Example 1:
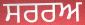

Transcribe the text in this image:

ਸਰਰਅ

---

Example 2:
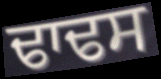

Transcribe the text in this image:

ਢਾਢਸ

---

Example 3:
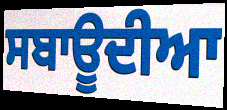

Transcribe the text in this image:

ਸਬਾਊਦੀਆ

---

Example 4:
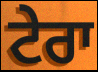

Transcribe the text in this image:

ਟੇਰਾ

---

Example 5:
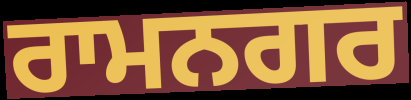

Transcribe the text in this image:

ਰਾਮਨਗਰ